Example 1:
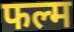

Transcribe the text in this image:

फल्म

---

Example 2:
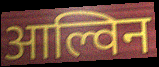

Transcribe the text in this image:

आल्विन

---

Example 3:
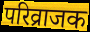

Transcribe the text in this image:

परिव्राजक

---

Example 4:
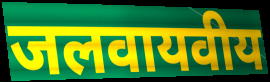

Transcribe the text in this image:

जलवायवीय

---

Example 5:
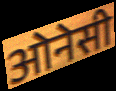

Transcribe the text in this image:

ओनेसी